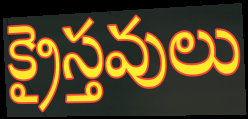
క్రైస్తవులు